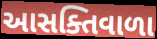
આસક્તિવાળા